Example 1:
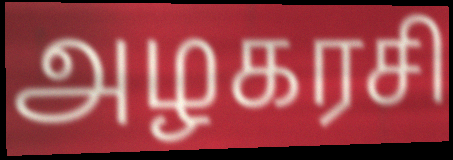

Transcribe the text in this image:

அழகரசி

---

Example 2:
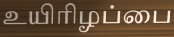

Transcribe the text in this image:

உயிரிழப்பை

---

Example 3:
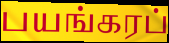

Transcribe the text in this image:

பயங்கரப்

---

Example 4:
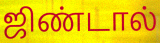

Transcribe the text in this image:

ஜிண்டால்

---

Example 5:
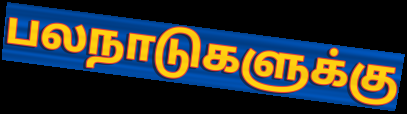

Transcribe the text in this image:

பலநாடுகளுக்கு